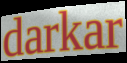
darkar